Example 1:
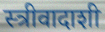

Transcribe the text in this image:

स्त्रीवादाशी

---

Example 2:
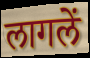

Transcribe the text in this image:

लागलें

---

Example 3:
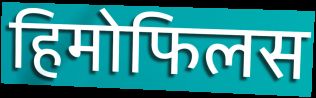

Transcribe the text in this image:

हिमोफिलस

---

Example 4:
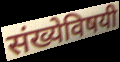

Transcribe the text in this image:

संख्येविषयी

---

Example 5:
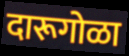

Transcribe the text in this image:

दारूगोळा